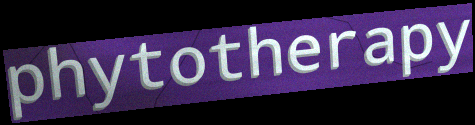
phytotherapy